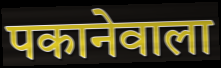
पकानेवाला